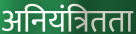
अनियंत्रितता